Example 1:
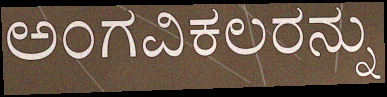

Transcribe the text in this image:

ಅಂಗವಿಕಲರನ್ನು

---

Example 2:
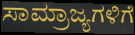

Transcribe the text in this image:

ಸಾಮ್ರಾಜ್ಯಗಳಿಗೆ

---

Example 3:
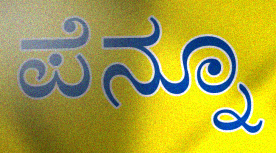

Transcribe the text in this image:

ಪೆನ್ನೂ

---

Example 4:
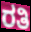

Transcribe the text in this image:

ರತಿ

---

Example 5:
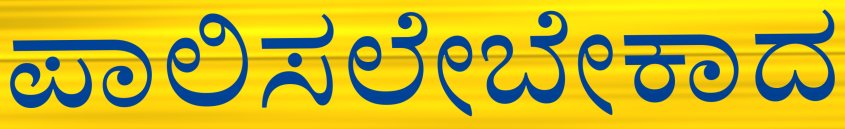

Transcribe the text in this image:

ಪಾಲಿಸಲೇಬೇಕಾದ